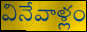
వినేవాళ్లం